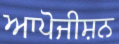
ਆਪੋਜੀਸ਼ਨ